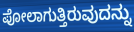
ಪೋಲಾಗುತ್ತಿರುವುದನ್ನು